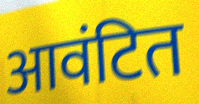
आवंटित